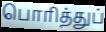
பொரித்துப்